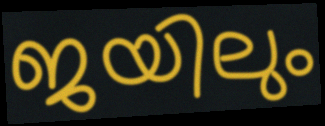
ജയിലും